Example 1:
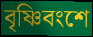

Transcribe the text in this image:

বৃষ্ণিবংশে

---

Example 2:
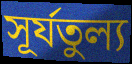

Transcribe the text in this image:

সূর্যতুল্য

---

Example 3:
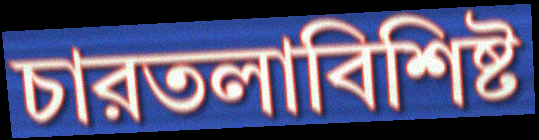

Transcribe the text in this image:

চারতলাবিশিষ্ট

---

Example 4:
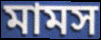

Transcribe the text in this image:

মামস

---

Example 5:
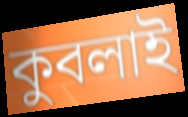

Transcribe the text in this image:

কুবলাই